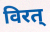
विरत्